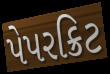
પેપરક્રિટ